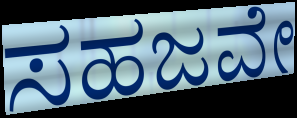
ಸಹಜವೇ